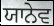
ਯਾਨੇਵ